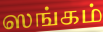
ஸங்கம்